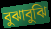
বুঝাবুঝি